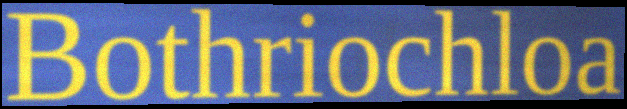
Bothriochloa